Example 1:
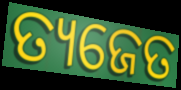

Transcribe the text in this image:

ତ୍ୟଜେତ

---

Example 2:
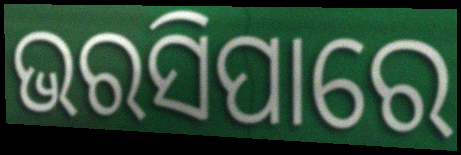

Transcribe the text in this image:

ଭରସିପାରେ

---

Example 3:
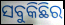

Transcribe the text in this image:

ସବୁକିଛିର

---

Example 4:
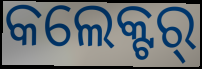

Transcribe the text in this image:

କଲେକ୍ଟର୍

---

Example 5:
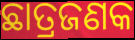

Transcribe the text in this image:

ଛାତ୍ରଜଣକ